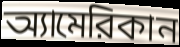
অ্যামেরিকান